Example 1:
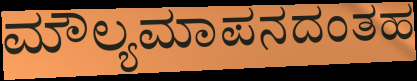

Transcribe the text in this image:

ಮೌಲ್ಯಮಾಪನದಂತಹ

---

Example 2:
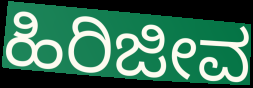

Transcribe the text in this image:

ಹಿರಿಜೀವ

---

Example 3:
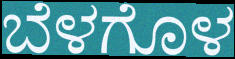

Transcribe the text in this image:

ಬೆಳಗೊಳ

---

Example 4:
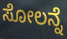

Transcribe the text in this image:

ಸೋಲನ್ನೆ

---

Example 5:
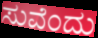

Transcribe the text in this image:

ಸುವೆಂದು